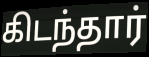
கிடந்தார்